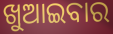
ଖୁଆଇବାର